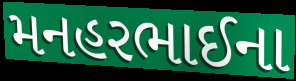
મનહરભાઈના